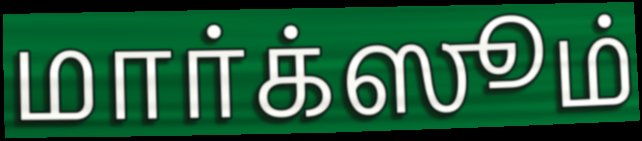
மார்க்ஸூம்